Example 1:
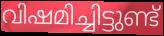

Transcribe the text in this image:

വിഷമിച്ചിട്ടുണ്ട്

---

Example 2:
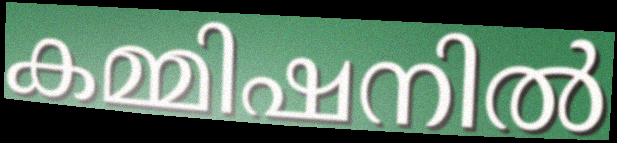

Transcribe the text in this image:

കമ്മിഷനിൽ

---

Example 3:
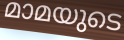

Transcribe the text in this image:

മാമയുടെ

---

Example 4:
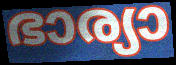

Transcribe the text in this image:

ഭാര്യാ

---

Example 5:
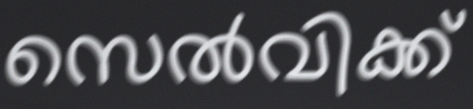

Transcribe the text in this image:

സെൽവിക്ക്